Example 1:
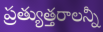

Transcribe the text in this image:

ప్రత్యుత్తరాలన్నీ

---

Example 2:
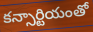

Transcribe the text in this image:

కన్సార్టియంతో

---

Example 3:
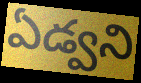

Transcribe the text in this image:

ఏడ్వని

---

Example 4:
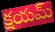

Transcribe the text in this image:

క్షయమ్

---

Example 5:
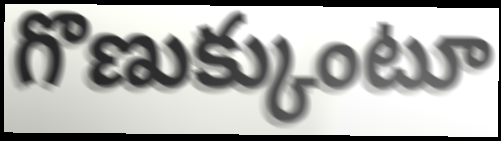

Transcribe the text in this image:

గొణుక్కుంటూ